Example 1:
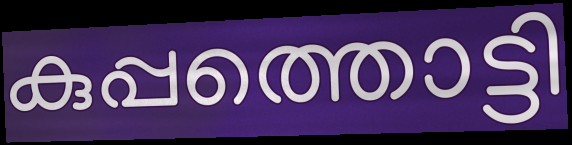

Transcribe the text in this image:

കുപ്പത്തൊട്ടി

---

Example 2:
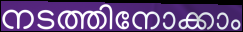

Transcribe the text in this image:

നടത്തിനോക്കാം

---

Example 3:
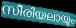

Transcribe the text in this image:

സീരിയലായും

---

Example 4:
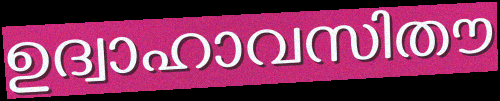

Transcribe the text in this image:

ഉദ്വാഹാവസിതൗ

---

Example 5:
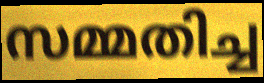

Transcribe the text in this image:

സമ്മതിച്ച